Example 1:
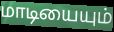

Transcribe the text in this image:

மாடியையும்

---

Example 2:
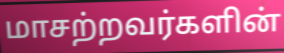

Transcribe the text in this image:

மாசற்றவர்களின்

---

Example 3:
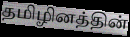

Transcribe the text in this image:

தமிழினத்தின்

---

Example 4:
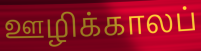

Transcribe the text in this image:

ஊழிக்காலப்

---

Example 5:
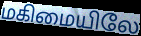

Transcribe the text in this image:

மகிமையிலே